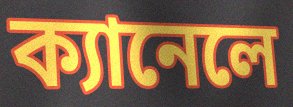
ক্যানেলে